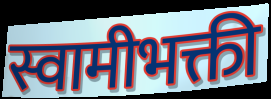
स्वामीभक्ती